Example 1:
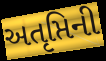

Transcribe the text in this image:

અતૃપ્તિની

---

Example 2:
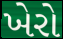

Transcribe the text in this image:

ખેરો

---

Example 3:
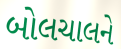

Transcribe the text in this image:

બોલચાલને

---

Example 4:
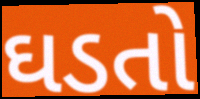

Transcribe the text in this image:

ઘડતો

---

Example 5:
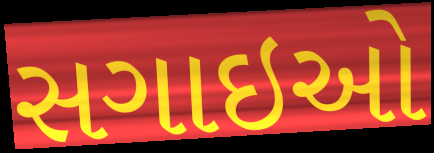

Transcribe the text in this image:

સગાઇઓ